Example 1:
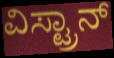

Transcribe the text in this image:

ವಿಸ್ಟ್ರಾನ್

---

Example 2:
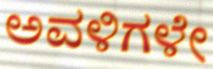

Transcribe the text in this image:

ಅವಳಿಗಳೇ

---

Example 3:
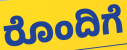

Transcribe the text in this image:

ರೊಂದಿಗೆ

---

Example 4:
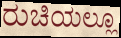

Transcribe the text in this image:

ರುಚಿಯಲ್ಲೂ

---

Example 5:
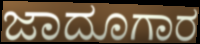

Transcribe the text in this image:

ಜಾದೂಗಾರ